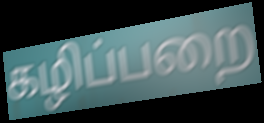
கழிப்பறை